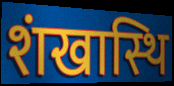
शंखास्थि